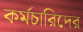
কর্মচারিদের